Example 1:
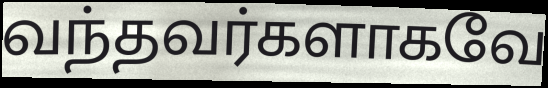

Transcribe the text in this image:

வந்தவர்களாகவே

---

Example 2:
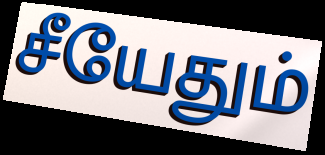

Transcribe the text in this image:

சீயேதும்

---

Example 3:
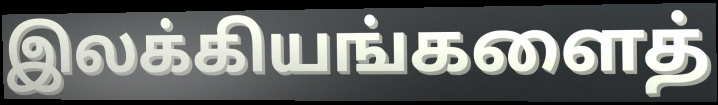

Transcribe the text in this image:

இலக்கியங்களைத்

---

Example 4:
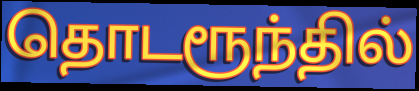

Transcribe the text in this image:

தொடரூந்தில்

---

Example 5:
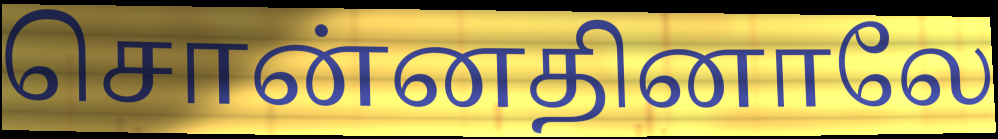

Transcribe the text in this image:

சொன்னதினாலே